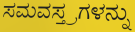
ಸಮವಸ್ತ್ರಗಳನ್ನು